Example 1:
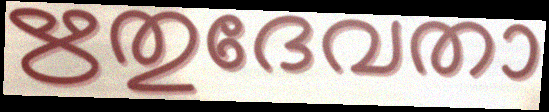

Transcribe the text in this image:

ഋതുദേവതാ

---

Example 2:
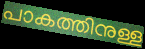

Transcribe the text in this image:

പാകത്തിനുള്ള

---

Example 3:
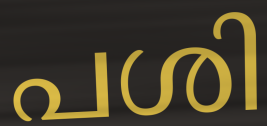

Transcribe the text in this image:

പശി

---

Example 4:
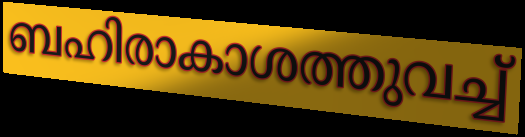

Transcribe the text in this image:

ബഹിരാകാശത്തുവച്ച്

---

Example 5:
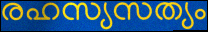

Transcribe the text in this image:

രഹസ്യസത്യം